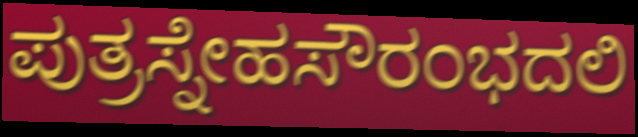
ಪುತ್ರಸ್ನೇಹಸೌರಂಭದಲಿ